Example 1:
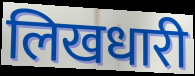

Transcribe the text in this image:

लिखधारी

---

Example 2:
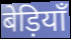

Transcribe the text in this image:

बेड़ियाँ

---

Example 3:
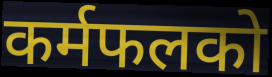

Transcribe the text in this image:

कर्मफलको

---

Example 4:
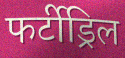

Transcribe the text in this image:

फर्टीड्रिल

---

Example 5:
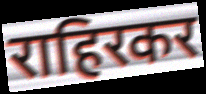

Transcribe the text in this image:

राहिरकर